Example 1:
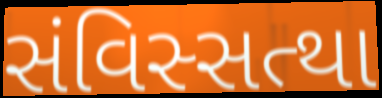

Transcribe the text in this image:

સંવિસ્સત્થા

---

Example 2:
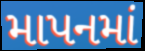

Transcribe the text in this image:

માપનમાં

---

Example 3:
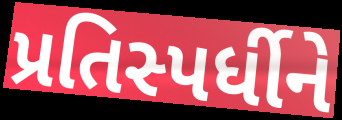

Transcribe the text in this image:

પ્રતિસ્પર્ધીને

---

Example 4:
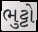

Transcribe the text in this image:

ભુટ્ટો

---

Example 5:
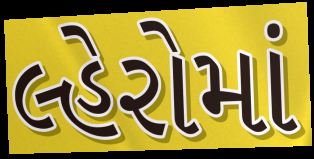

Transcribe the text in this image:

લ્હેરોમાં